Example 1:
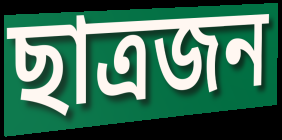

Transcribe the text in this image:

ছাত্ৰজন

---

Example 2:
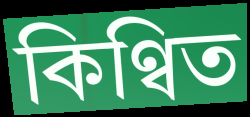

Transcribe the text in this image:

কিণ্বিত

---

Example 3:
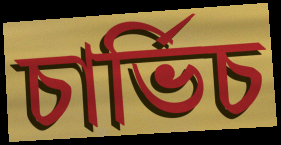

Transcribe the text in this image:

চাৰ্ভিচ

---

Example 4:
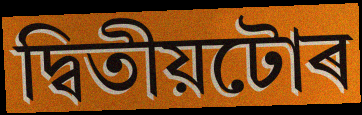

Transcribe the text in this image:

দ্বিতীয়টোৰ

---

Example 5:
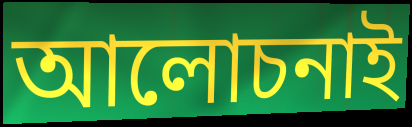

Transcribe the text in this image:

আলোচনাই